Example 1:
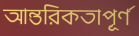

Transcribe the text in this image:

আন্তরিকতাপূর্ণ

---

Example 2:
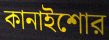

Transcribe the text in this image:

কানাইশোর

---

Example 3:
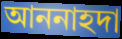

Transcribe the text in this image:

আননাহদা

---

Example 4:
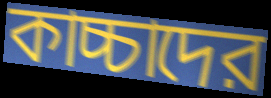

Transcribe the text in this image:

কাচ্চাদের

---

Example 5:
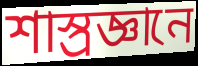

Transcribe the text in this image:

শাস্ত্রজ্ঞানে